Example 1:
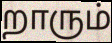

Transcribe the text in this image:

றாரும்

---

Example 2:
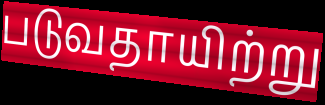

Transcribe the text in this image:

படுவதாயிற்று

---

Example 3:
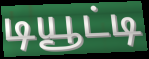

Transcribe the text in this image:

டியூட்டி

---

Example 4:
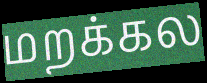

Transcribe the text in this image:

மறக்கல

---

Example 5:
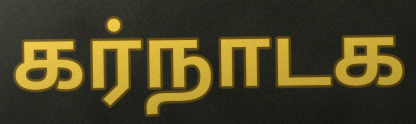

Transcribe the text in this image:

கர்நாடக